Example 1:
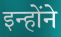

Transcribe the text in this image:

इन्‍होंने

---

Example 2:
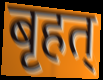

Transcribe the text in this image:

बृहत्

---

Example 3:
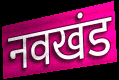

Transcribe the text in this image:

नवखंड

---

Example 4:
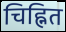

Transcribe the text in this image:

चिह्नित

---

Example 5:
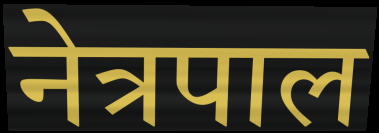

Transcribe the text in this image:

नेत्रपाल